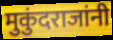
मुकुंदराजांनी